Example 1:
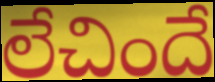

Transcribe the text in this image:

లేచిందే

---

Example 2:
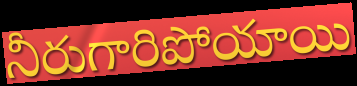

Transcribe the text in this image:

నీరుగారిపోయాయి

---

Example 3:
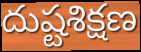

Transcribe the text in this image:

దుష్టశిక్షణ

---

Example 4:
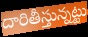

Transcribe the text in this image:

దారితీస్తున్నట్టు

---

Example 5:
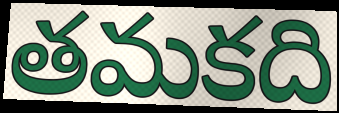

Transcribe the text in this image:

తమకది